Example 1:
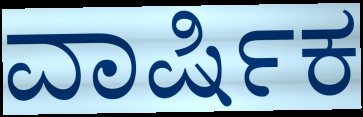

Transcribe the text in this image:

ವಾರ್ಷಿಕ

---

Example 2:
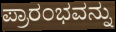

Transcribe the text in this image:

ಪ್ರಾರಂಭವನ್ನು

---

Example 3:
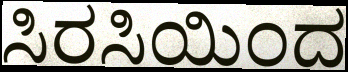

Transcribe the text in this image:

ಸಿರಸಿಯಿಂದ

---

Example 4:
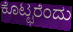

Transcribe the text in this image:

ಕೊಟ್ಟರೆಂದು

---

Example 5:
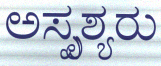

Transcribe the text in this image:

ಅಸ್ಪೃಶ್ಯರು